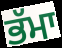
ਭੱਮਾ